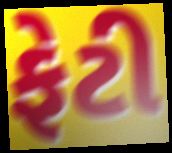
ફેટી